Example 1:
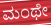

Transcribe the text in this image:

ಮಂಥೇ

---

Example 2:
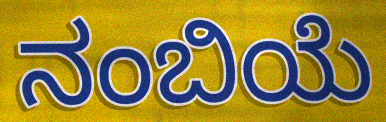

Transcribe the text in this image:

ನಂಬಿಯೆ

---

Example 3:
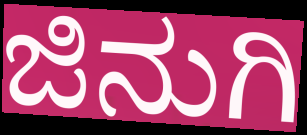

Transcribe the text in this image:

ಜಿನುಗಿ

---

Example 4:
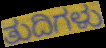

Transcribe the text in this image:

ತುದಿಗಳು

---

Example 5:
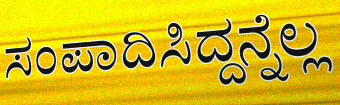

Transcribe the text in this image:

ಸಂಪಾದಿಸಿದ್ದನ್ನೆಲ್ಲ